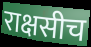
राक्षसीच